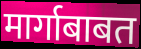
मार्गाबाबत